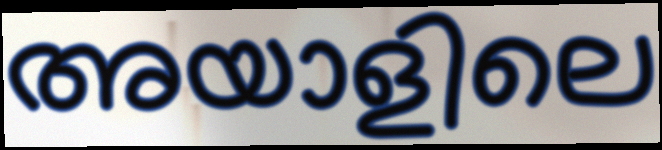
അയാളിലെ